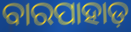
ବାରପାହାଡ଼